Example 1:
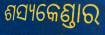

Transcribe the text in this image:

ଶସ୍ୟକେଣ୍ଡାର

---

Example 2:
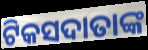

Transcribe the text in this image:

ଟିକସଦାତାଙ୍କ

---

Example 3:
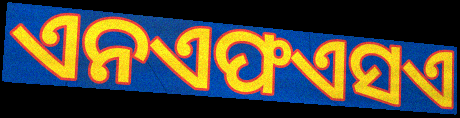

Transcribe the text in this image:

ଏନଏଫଏସଏ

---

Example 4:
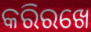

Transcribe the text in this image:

କରିରଖେ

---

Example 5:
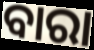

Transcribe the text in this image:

ବାରା